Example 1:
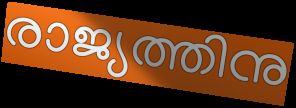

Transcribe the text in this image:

രാജ്യത്തിനു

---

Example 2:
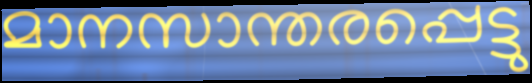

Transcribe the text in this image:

മാനസാന്തരപ്പെട്ടു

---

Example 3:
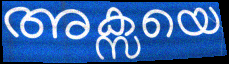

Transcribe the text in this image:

അക്സയെ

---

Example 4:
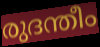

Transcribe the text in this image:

രുദന്തീം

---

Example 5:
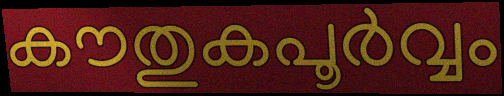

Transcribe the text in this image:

കൗതുകപൂർവ്വം